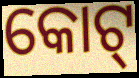
କୋଟ୍